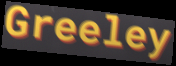
Greeley